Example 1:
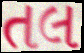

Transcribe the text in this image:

તલ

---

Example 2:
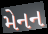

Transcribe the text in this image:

મેનન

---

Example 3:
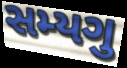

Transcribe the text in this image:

સમ્યગુ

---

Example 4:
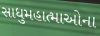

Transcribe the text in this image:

સાધુમહાત્માઓના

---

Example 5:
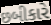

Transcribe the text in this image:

છબીકારે